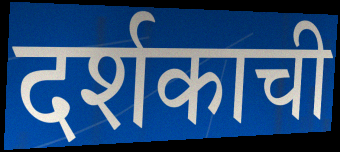
दर्शकाची